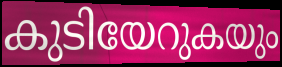
കുടിയേറുകയും